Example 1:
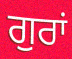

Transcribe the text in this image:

ਗੁਰਾਂ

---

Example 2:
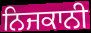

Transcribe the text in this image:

ਨਿਜਕਾਨੀ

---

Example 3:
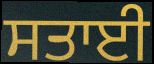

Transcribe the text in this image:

ਸਤਾਈ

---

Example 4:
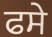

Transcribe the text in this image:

ਫਸੇ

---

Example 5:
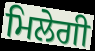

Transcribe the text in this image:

ਮਿਲੇਗੀ